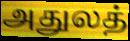
அதுலத்